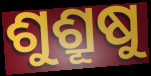
ଶୁଶ୍ରୂଷୁ